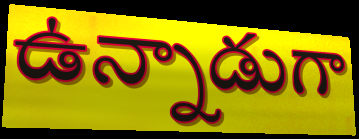
ఉన్నాడుగా